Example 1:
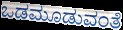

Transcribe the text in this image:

ಒಡಮೂಡುವಂತೆ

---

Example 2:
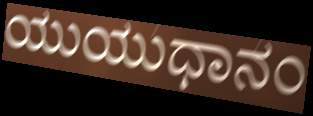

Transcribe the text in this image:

ಯುಯುಧಾನಂ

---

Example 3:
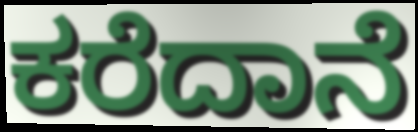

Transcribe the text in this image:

ಕರೆದಾನೆ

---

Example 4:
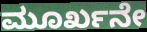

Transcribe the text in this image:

ಮೂರ್ಖನೇ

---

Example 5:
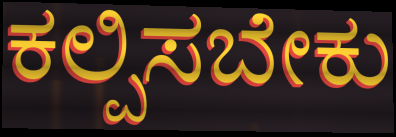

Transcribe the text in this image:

ಕಲ್ಪಿಸಬೇಕು